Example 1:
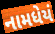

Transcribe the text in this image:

નામધેયં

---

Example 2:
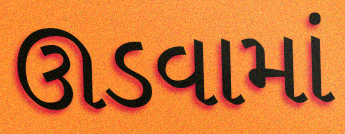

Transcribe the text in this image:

ઊડવામાં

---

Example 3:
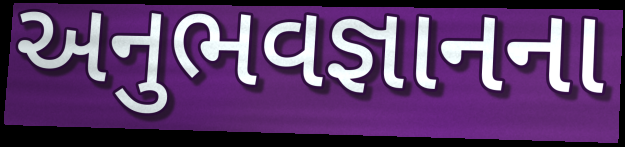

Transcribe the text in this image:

અનુભવજ્ઞાનના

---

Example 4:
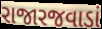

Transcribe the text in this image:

રાજારજવાડાં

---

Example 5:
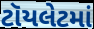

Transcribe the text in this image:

ટૉયલેટમાં